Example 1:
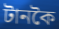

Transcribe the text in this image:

টানকৈ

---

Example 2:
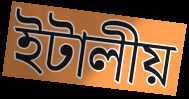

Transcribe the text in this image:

ইটালীয়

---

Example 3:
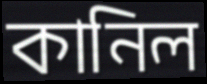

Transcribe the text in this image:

কানিল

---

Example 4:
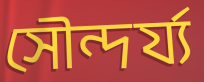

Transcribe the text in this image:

সৌন্দৰ্য্য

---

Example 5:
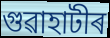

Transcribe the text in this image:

গুৱাহাটীৰ